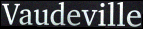
Vaudeville